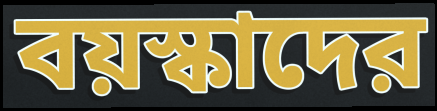
বয়স্কাদের